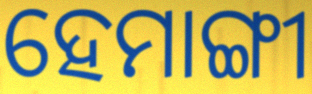
ହେମାଙ୍ଗୀ